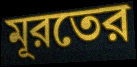
মূরতের